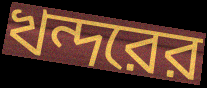
খন্দরের